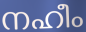
നഹീം